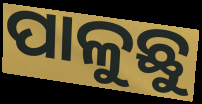
ପାଳୁଛୁ